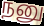
நனு